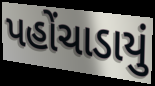
પહોંચાડાયું